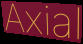
Axial